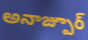
అనాజ్పూర్